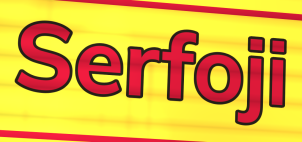
Serfoji